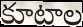
కూటాల